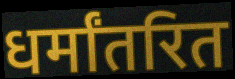
धर्मांतरित